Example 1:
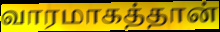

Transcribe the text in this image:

வாரமாகத்தான்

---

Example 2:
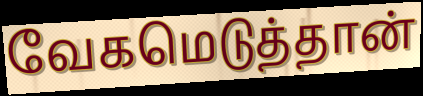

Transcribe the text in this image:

வேகமெடுத்தான்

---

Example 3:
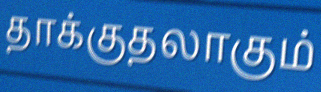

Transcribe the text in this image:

தாக்குதலாகும்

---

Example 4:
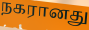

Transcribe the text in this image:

நகரானது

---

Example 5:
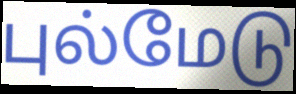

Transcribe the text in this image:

புல்மேடு